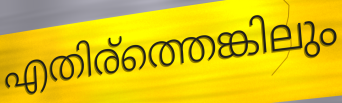
എതിര്ത്തെങ്കിലും